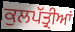
ਕੁਲਪੱਤ੍ਰੀਆਂ